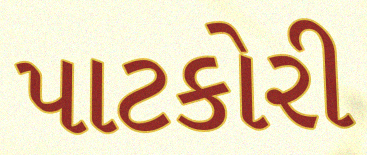
પાટકોરી